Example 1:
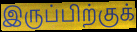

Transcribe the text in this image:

இருப்பிற்குக்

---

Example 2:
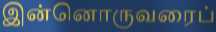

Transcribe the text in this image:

இன்னொருவரைப்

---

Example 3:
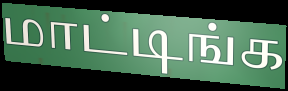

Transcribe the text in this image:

மாட்டிங்க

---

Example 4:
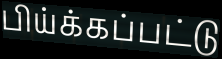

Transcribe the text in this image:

பிய்க்கப்பட்டு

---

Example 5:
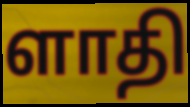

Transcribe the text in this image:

ளாதி